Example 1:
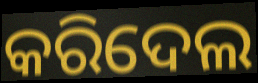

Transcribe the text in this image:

କରିଦେଲ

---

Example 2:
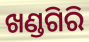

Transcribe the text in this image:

ଖଣ୍ଡଗିରି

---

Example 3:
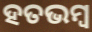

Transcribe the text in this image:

ହତଭମ୍ୱ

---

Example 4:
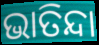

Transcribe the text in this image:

ଭାତିନ୍ଦା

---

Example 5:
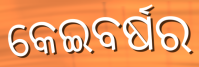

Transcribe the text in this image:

କେଇବର୍ଷର